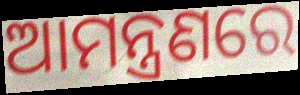
ଆମନ୍ତ୍ରଣରେ